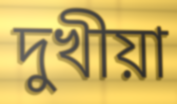
দুখীয়া